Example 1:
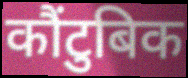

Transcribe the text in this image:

कौंटुबिक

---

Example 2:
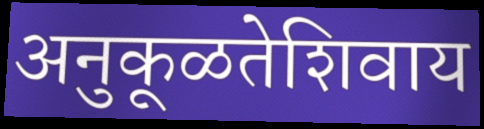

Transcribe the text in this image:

अनुकूळतेशिवाय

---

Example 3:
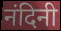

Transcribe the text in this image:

नंदिनी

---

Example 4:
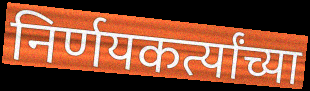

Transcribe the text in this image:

निर्णयकर्त्यांच्या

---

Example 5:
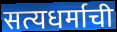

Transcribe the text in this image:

सत्यधर्माची